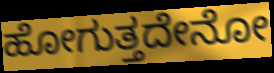
ಹೋಗುತ್ತದೇನೋ